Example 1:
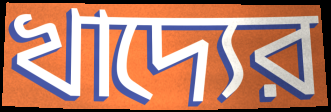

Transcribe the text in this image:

খাদ্যের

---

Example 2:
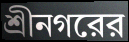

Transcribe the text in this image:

শ্রীনগরের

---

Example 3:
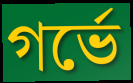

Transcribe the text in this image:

গর্ভে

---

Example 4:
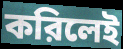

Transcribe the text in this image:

করিলেই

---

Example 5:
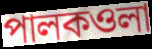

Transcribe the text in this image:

পালকওলা